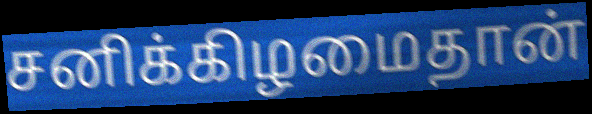
சனிக்கிழமைதான்